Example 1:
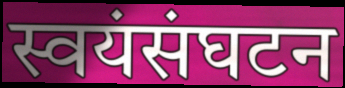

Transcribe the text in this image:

स्वयंसंघटन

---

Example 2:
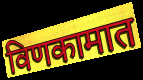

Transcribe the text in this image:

विणकामात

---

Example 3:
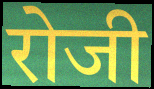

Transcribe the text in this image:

रोजी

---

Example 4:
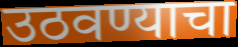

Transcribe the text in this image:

उठवण्याचा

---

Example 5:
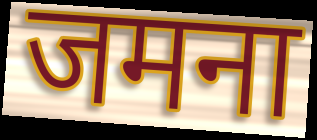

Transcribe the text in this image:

जमना